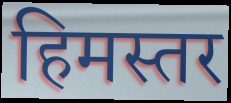
हिमस्तर